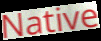
Native